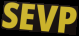
SEVP